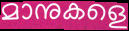
മാനുകളെ